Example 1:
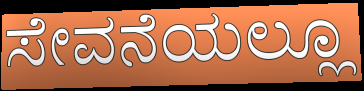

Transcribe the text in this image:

ಸೇವನೆಯಲ್ಲೂ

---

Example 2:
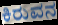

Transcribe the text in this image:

ಕಿರುವನ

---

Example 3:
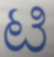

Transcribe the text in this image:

ಟಿ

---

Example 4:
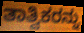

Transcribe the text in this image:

ತಾತ್ವಿಕರನ್ನು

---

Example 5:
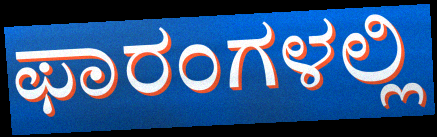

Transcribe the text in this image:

ಫಾರಂಗಳಲ್ಲಿ